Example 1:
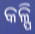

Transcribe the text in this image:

କଳ୍ପି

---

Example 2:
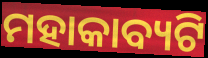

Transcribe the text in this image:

ମହାକାବ୍ୟଟି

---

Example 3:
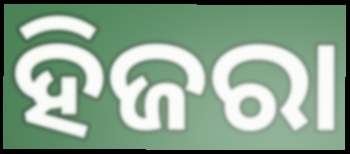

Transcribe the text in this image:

ହିଜରା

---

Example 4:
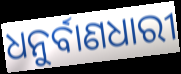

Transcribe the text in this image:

ଧନୁର୍ବାଣଧାରୀ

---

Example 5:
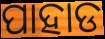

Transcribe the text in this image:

ପାହାଡ